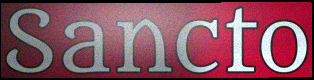
Sancto